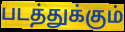
படத்துக்கும்